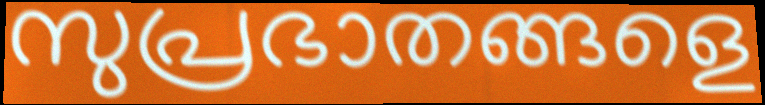
സുപ്രഭാതങ്ങളെ